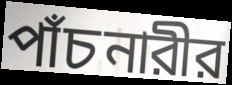
পাঁচনারীর